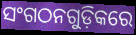
ସଂଗଠନଗୁଡ଼ିକରେ